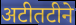
अटीतटीने